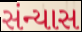
સંન્યાસ